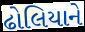
ઢોલિયાને